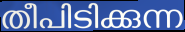
തീപിടിക്കുന്ന